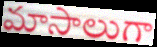
మాసాలుగా